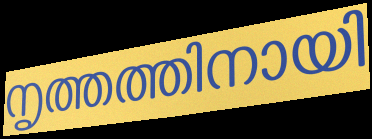
നൃത്തത്തിനായി